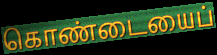
கொண்டையைப்